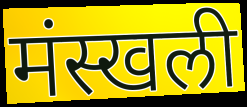
मंस्खली